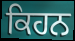
ਕਿਹਨ